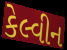
કેલ્વીન